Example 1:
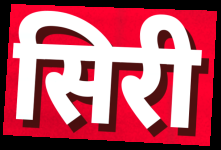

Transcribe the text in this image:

सिरी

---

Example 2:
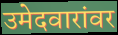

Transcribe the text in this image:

उमेदवारांवर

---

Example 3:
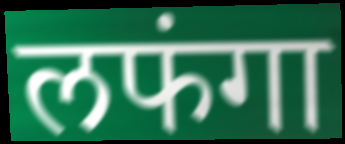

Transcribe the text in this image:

लफंगा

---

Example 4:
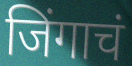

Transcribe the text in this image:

जिंगाचं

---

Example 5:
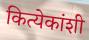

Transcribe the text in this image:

कित्येकांशी